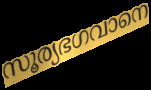
സൂര്യഭഗവാനെ